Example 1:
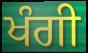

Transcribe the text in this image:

ਖੰਗੀ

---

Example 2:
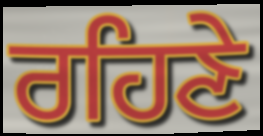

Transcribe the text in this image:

ਰਹਿਣੇ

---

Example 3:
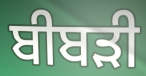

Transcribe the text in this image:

ਬੀਬੜੀ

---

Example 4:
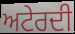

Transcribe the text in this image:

ਅਟੇਰਦੀ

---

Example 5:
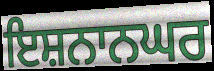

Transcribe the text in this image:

ਇਸ਼ਨਾਨਘਰ